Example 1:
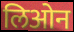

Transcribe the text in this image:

लिओन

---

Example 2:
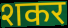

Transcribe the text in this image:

शकर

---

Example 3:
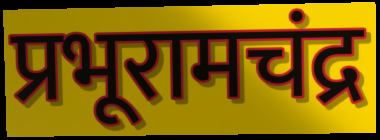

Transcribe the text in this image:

प्रभूरामचंद्र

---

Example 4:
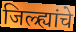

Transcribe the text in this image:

जिल्ह्यांचे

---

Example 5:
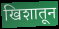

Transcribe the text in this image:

खिशातून